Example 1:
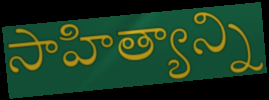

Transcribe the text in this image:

సాహిత్యాన్ని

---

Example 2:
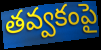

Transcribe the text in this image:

తవ్వకంపై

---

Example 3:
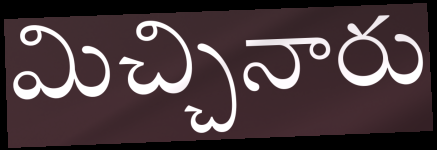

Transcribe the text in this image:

మిచ్చినారు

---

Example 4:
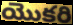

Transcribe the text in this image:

యొకరి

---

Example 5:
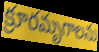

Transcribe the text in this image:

క్రూరమృగాలను